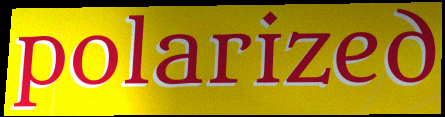
polarized